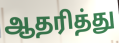
ஆதரித்து